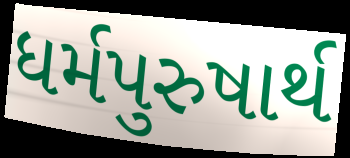
ધર્મપુરુષાર્થ